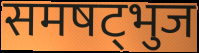
समषट्भुज